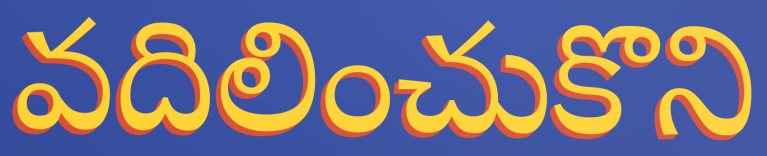
వదిలించుకొని